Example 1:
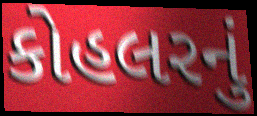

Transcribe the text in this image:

કોહલરનું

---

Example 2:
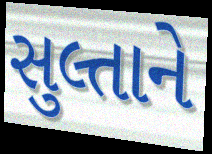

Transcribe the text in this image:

સુલ્તાને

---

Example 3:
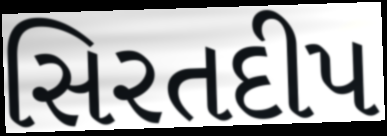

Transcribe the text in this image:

સિરતદીપ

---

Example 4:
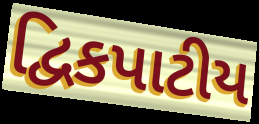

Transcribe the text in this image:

દ્વિકપાટીય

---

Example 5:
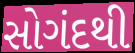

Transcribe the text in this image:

સોગંદથી